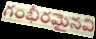
గంభీరమైనవి